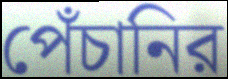
পেঁচানির